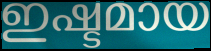
ഇഷ്ടമായ